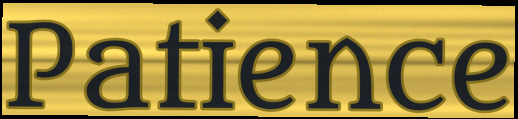
Patience